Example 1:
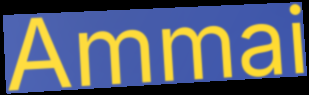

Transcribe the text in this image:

Ammai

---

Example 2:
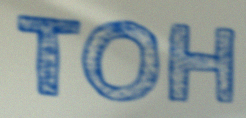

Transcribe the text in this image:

TOH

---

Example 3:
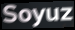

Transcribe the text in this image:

Soyuz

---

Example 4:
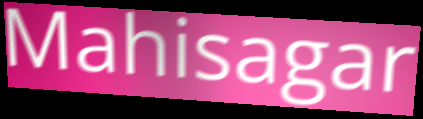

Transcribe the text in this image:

Mahisagar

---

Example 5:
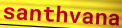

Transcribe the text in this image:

santhvana